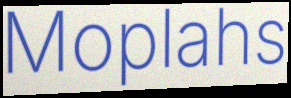
Moplahs